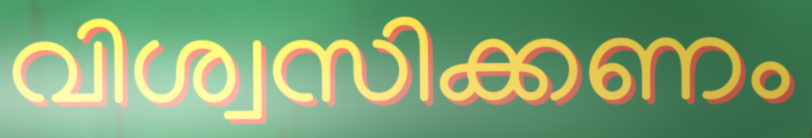
വിശ്വസിക്കണം